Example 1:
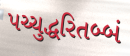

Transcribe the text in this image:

પચ્ચુદ્ધરિતબ્બં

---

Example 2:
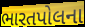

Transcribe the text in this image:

ભારતપોલના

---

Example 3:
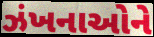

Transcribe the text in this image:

ઝંખનાઓને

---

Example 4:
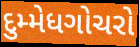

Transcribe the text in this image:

દુમ્મેધગોચરો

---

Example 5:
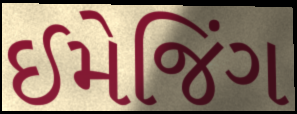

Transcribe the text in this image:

ઈમેજિંગ